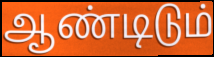
ஆண்டிடும்